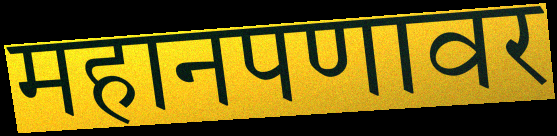
महानपणावर